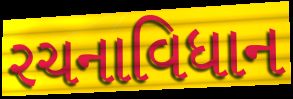
રચનાવિધાન